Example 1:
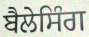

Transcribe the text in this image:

ਬੈਲੇਸਿੰਗ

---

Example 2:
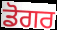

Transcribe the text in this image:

ਡੋਗਰ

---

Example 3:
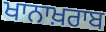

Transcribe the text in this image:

ਖਾਨਾਖ਼ਰਾਬ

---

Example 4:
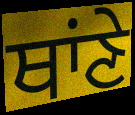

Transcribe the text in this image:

ਥਾਂਣੇ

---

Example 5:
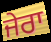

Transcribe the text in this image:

ਜੇਰਾ